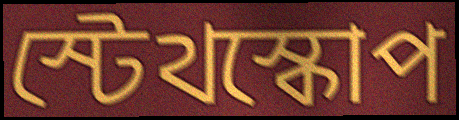
স্টেথস্কোপ